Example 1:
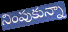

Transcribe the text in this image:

నింపుకున్నా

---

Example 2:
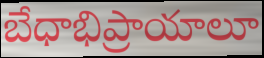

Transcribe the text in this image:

బేధాభిప్రాయాలూ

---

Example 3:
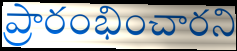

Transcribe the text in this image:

ప్రారంభించారని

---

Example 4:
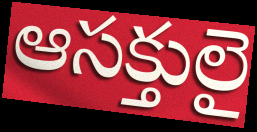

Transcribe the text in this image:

ఆసక్తులై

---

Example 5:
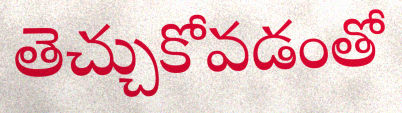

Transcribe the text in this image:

తెచ్చుకోవడంతో